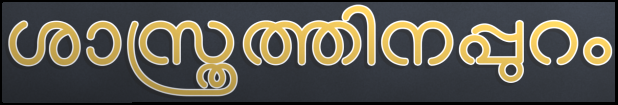
ശാസ്ത്രത്തിനപ്പുറം